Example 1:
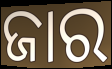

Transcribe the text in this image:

ଜାର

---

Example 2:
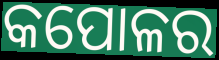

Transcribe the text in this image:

କପୋଳର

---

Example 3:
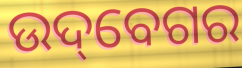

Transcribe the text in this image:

ଉଦ୍‌ବେଗର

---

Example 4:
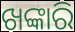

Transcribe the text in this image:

ଖଙ୍କାରି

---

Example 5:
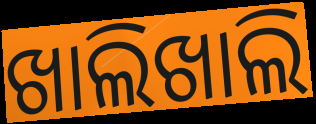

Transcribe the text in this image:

ଖାଲିଖାଲି